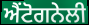
ਐਂਟੋਗਨੇਲੀ